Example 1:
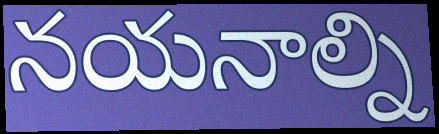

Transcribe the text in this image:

నయనాల్ని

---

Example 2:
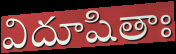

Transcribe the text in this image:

విదూషితాః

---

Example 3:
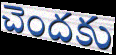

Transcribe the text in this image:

చెందకు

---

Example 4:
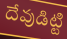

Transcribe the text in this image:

దేవుడిట్టి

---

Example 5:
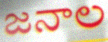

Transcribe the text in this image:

జనాల